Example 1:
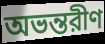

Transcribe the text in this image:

অভন্তরীণ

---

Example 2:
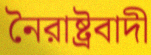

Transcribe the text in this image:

নৈরাষ্ট্রবাদী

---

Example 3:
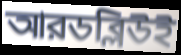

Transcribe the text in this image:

আরডব্লিউই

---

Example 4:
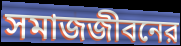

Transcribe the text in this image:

সমাজজীবনের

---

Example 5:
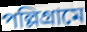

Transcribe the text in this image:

পল্লিগ্রামে